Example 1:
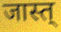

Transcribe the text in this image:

जास्त्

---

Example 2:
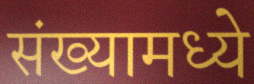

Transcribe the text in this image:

संख्यामध्ये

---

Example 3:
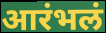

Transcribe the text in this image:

आरंभलं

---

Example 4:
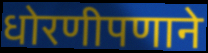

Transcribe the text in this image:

धोरणीपणाने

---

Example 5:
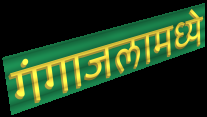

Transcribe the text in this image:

गंगाजलामध्ये